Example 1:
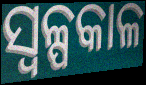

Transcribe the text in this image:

ସ୍ୱଳ୍ପକାଳ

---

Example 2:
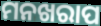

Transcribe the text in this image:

ମନଖରାପ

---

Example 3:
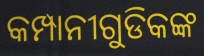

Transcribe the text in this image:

କମ୍ପାନୀଗୁଡିକଙ୍କ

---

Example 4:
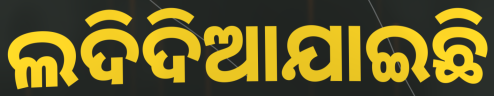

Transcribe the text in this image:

ଲଦିଦିଆଯାଇଛି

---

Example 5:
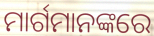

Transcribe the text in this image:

ମାର୍ଗମାନଙ୍କରେ